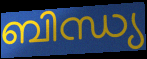
ബിന്ധ്യ